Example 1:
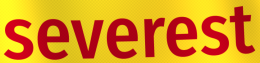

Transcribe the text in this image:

severest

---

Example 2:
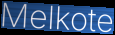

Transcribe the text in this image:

Melkote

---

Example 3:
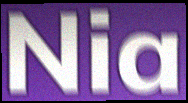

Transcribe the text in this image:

Nia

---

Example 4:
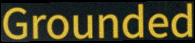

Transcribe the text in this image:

Grounded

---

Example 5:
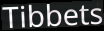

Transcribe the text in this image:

Tibbets